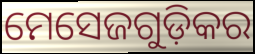
ମେସେଜଗୁଡ଼ିକର